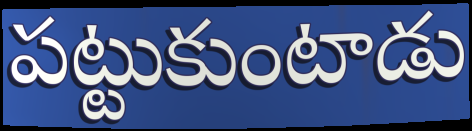
పట్టుకుంటాడు